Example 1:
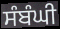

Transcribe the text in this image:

ਸੰਬੰਘੀ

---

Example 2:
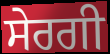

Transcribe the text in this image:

ਸੇਰਗੀ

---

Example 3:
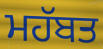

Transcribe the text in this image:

ਮਹੱਬਤ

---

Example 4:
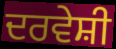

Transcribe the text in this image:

ਦਰਵੇਸ਼ੀ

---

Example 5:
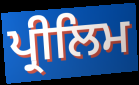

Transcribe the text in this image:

ਪ੍ਰੀਲਿਮ